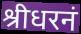
श्रीधरनं